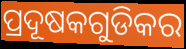
ପ୍ରଦୂଷକଗୁଡିକର